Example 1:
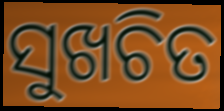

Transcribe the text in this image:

ସୁଖଚିତ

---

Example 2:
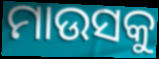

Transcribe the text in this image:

ମାଉସକୁ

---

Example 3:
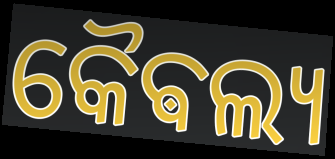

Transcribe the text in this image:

କୈଵଲ୍ୟ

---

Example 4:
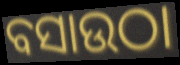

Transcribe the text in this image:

ବସାଉଠା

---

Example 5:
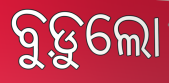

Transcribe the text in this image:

ବୁଡ଼ୁଲୋ